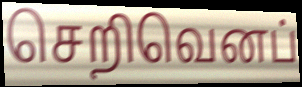
செறிவெனப்